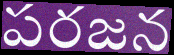
పరజన